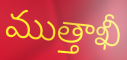
ముత్తాఖీ